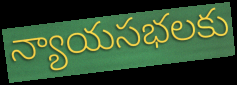
న్యాయసభలకు